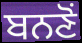
ਬਨਣੋਂ